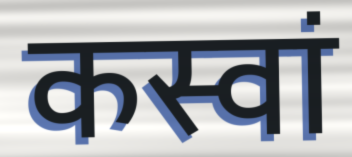
कस्वां